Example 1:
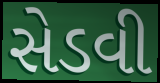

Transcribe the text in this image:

સેડવી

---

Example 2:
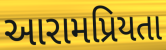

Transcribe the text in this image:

આરામપ્રિયતા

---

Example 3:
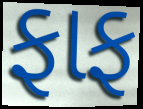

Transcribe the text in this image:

ફાફ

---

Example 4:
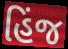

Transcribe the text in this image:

હિંજ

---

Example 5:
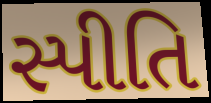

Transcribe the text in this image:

સ્પીતિ